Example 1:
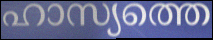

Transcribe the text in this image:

ഹാസ്യത്തെ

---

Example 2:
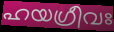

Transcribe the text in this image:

ഹയഗ്രീവഃ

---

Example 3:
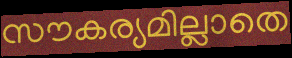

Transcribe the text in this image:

സൗകര്യമില്ലാതെ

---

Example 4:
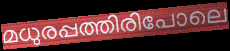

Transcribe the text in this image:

മധുരപ്പത്തിരിപോലെ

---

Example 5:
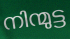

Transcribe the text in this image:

നിന്മുട്ട